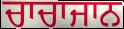
ਚਾਚਾਜਾਨ